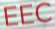
EEC